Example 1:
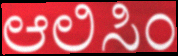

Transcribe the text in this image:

ಆಲಿಸಿಂ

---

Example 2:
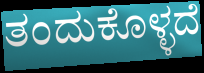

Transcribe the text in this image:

ತಂದುಕೊಳ್ಳದೆ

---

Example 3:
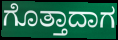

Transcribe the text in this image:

ಗೊತ್ತಾದಾಗ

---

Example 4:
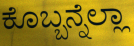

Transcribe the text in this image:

ಕೊಬ್ಬನ್ನೆಲ್ಲಾ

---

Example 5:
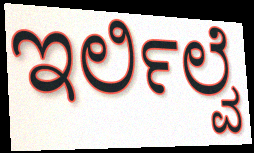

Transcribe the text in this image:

ಇರ್ಲಿಲ್ವೆ